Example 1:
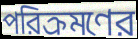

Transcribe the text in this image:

পরিক্রমণের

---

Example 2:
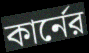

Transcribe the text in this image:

কার্নের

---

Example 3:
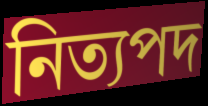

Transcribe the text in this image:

নিত্যপদ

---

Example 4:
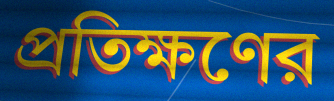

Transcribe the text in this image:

প্রতিক্ষণের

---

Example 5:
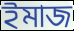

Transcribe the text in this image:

ইমাজ